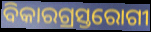
ବିକାରଗ୍ରସ୍ତରୋଗୀ